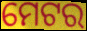
ମେଟର